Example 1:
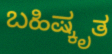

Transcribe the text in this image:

ಬಹಿಷ್ಕೃತ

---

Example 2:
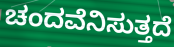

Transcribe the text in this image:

ಚಂದವೆನಿಸುತ್ತದೆ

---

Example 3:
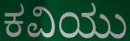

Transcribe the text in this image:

ಕವಿಯು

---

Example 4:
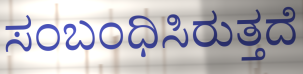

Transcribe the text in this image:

ಸಂಬಂಧಿಸಿರುತ್ತದೆ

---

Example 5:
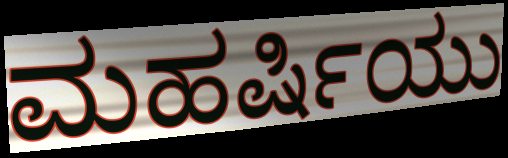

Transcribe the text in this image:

ಮಹರ್ಷಿಯು